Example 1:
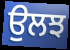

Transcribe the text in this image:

ਉਲਝ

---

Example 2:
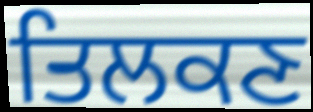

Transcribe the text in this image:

ਤਿਲਕਣ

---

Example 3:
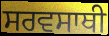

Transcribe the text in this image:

ਸਰਵਸਾਥੀ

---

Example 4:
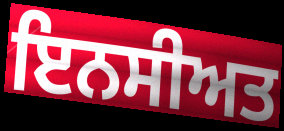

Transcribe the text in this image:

ਇਨਸੀਅਤ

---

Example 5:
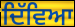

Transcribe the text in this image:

ਦਿੱਵਿਆ